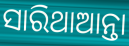
ସାରିଥାଆନ୍ତା